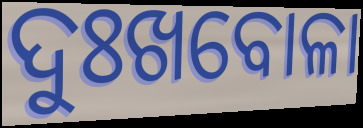
ଦୁଃଖବୋଳା